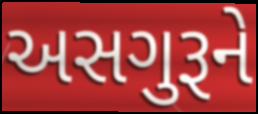
અસગુરૂને